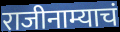
राजीनाम्याचं